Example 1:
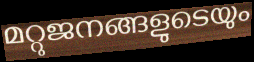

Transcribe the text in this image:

മറ്റുജനങ്ങളുടെയും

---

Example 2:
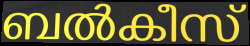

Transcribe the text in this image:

ബൽകീസ്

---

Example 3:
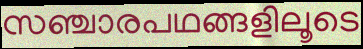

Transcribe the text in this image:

സഞ്ചാരപഥങ്ങളിലൂടെ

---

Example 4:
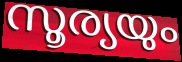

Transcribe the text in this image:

സൂര്യയും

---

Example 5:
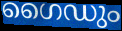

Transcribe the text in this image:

ഗൈഡും